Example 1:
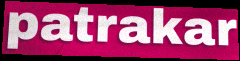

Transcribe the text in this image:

patrakar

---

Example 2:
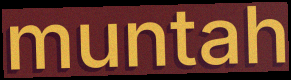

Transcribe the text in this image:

muntah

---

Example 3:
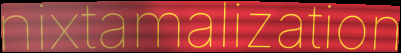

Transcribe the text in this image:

nixtamalization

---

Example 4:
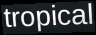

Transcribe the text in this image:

tropical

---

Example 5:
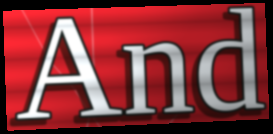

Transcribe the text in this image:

And